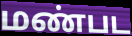
மண்பட